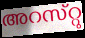
അറസ്‌റ്റു